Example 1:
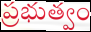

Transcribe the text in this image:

ప్రభుత్వం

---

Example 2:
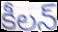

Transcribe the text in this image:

కీలన్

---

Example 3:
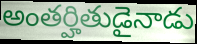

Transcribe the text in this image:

అంతర్హితుడైనాడు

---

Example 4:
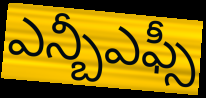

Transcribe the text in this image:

ఎన్బీఎఫ్సీ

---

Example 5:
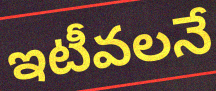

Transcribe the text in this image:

ఇటీవలనే